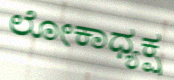
ಲೋಕಾಧ್ಯಕ್ಷ